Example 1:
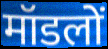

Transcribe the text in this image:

मॉडलों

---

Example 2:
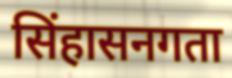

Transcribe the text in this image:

सिंहासनगता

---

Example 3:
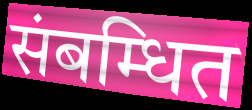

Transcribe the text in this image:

संबम्धित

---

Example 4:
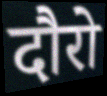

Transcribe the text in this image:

दौरो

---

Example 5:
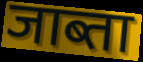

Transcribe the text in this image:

जाब्ता